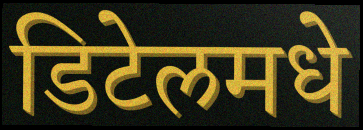
डिटेलमधे